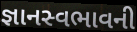
જ્ઞાનસ્વભાવની